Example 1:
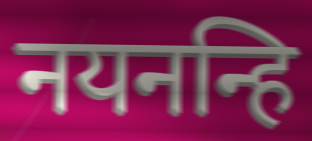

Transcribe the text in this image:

नयनन्हि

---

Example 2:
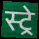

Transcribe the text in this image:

स्ट्रे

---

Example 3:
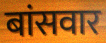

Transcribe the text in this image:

बांसवार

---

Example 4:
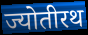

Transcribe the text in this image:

ज्योतीरथ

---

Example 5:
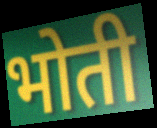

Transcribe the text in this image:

भोती